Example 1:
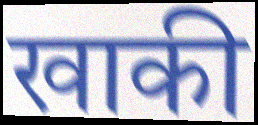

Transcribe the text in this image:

खाकी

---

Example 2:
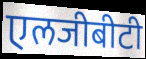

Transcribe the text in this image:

एलजीबीटी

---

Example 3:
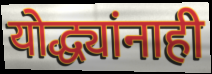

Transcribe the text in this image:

योद्ध्यांनाही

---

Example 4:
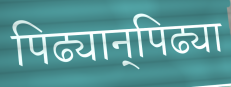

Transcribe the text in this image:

पिढ्यान्‌पिढ्या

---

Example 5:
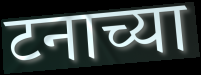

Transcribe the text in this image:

टनाच्या